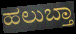
ಹಲುಬ್ತಾ